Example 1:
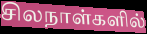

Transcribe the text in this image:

சிலநாள்களில்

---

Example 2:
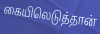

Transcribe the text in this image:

கையிலெடுத்தான்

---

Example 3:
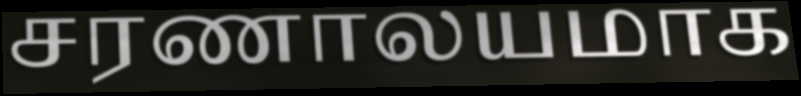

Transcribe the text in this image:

சரணாலயமாக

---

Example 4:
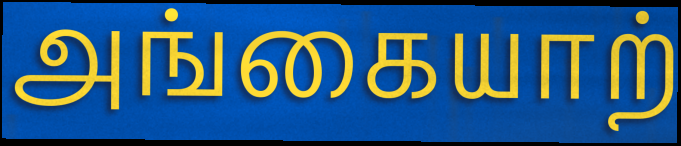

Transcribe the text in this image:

அங்கையாற்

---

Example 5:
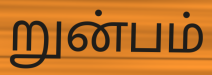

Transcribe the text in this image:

றுன்பம்